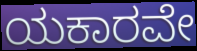
ಯಕಾರವೇ